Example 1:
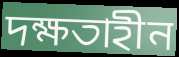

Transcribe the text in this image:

দক্ষতাহীন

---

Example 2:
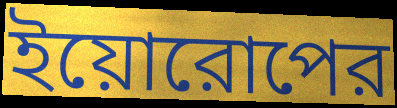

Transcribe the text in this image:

ইয়োরোপের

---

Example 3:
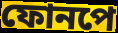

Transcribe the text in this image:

ফোনপে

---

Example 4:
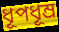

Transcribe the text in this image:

ধূপধূম্র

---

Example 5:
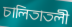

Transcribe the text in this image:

চালিতাতলী